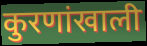
कुरणांखाली